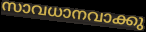
സാവധാനവാക്കു